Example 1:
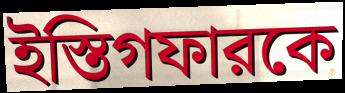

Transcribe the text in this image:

ইস্তিগফারকে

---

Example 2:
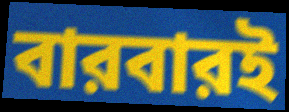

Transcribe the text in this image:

বারবারই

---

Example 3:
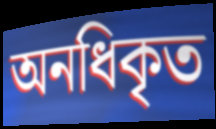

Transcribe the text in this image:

অনধিকৃত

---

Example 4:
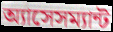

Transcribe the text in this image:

অ্যাসেসম্যান্ট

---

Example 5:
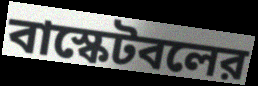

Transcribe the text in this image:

বাস্কেটবলের